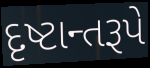
દૃષ્ટાન્તરૂપે